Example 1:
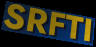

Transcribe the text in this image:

SRFTI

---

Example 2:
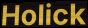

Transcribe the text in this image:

Holick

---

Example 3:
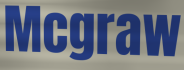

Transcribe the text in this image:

Mcgraw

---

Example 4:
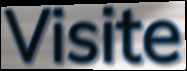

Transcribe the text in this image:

Visite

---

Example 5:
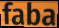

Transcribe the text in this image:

faba